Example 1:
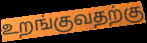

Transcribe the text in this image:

உறங்குவதற்கு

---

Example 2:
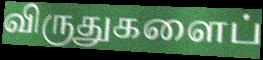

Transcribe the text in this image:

விருதுகளைப்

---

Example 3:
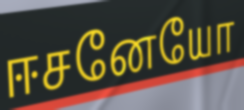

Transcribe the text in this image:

ஈசனேயோ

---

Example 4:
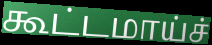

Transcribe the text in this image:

கூட்டமாய்ச்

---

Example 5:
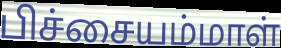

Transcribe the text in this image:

பிச்சையம்மாள்